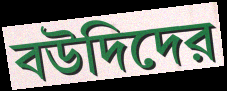
বউদিদের